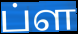
ப்ள